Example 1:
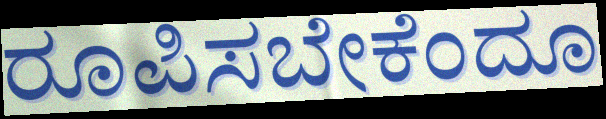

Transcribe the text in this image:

ರೂಪಿಸಬೇಕೆಂದೂ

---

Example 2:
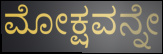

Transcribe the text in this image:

ಮೋಕ್ಷವನ್ನೇ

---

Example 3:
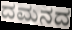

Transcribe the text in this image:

ದಮನದ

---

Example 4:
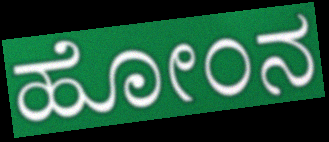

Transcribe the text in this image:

ಹೋಂನ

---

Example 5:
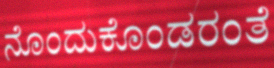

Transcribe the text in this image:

ನೊಂದುಕೊಂಡರಂತೆ